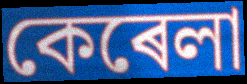
কেৰেলা